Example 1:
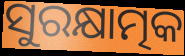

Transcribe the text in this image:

ସୁରକ୍ଷାତ୍ମକ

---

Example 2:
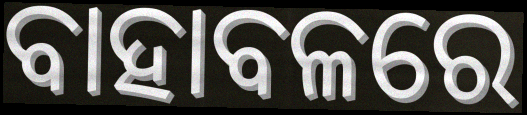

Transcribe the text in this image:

ବାହାବଳରେ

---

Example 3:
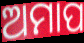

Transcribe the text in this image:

ଅମାପ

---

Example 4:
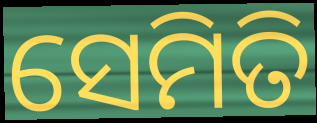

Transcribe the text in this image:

ସେମିତି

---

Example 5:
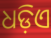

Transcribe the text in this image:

ଧଡ଼ିଏ